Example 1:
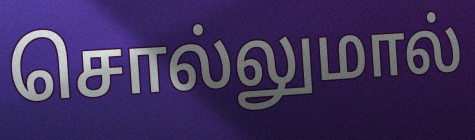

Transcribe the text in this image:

சொல்லுமால்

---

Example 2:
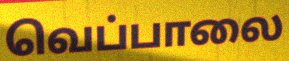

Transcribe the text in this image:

வெப்பாலை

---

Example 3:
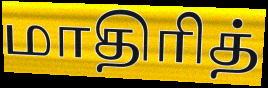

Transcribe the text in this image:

மாதிரித்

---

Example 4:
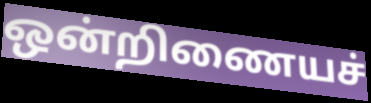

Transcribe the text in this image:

ஒன்றிணையச்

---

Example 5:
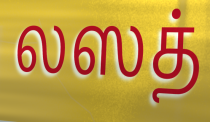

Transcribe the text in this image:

லஸத்